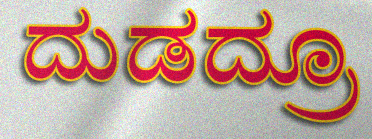
ದುಡದ್ರೂ